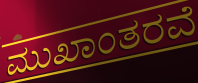
ಮುಖಾಂತರವೆ